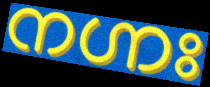
നഗ്നഃ